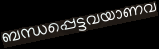
ബന്ധപ്പെട്ടവയാണവ